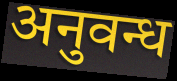
अनुवन्ध